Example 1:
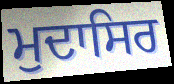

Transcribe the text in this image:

ਮੁਦਾਸਿਰ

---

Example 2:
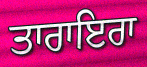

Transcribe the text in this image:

ਤਾਰਾਇਰਾ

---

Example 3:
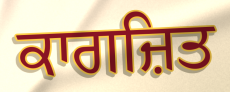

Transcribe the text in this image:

ਕਾਗਜ਼ਿਤ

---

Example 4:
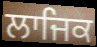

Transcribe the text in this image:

ਲਾਜਿਕ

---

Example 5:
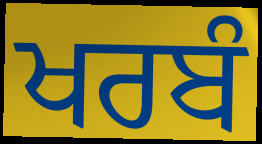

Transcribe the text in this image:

ਖਰਬੰ